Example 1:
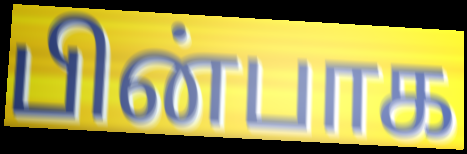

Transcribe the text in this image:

பின்பாக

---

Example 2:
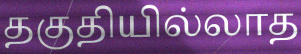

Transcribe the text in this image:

தகுதியில்லாத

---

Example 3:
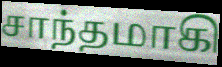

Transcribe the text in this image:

சாந்தமாகி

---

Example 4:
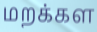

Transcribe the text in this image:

மறக்கள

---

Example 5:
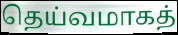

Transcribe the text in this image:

தெய்வமாகத்